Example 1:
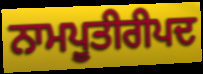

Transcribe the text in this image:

ਨਾਮਪੂਤੀਰੀਪਦ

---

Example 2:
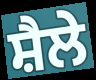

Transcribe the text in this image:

ਸ਼ੈਲੇ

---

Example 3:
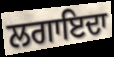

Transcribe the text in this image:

ਲਗਾਇਦਾ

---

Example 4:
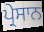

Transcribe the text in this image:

ਪ੍ਰੇਸਾਨ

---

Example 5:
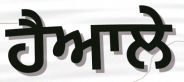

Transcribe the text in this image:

ਹੈਆਲੇ